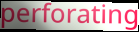
perforating